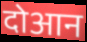
दोआन